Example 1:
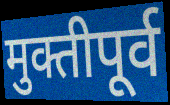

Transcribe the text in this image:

मुक्तीपूर्व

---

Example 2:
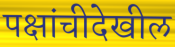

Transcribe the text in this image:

पक्षांचीदेखील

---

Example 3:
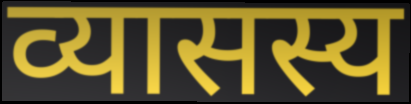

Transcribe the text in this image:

व्यासस्य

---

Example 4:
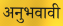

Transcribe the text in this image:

अनुभवावी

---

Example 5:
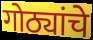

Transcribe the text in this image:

गोठ्यांचे